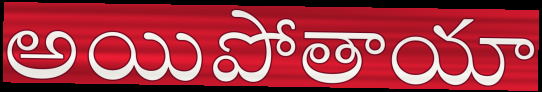
అయిపోతాయా